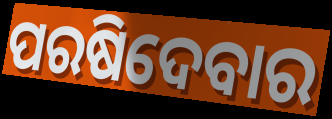
ପରଷିଦେବାର